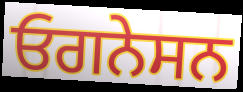
ਓਗਨੇਸਨ